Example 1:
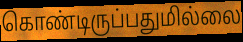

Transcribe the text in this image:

கொண்டிருப்பதுமில்லை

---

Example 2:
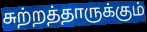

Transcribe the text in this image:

சுற்றத்தாருக்கும்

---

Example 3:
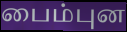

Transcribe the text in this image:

பைம்புன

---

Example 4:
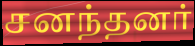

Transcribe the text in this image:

சனந்தனர்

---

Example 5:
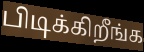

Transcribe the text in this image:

பிடிக்கிறீங்க